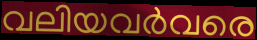
വലിയവർവരെ